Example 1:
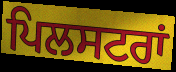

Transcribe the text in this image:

ਪਿਲਸਟਰਾਂ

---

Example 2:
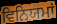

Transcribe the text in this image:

ਵਿਨਿਯਮਾਂ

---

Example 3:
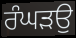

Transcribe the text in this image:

ਰੰਘੜਉ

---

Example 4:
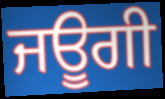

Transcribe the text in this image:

ਜਊਗੀ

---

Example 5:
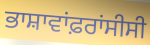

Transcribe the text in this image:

ਭਾਸ਼ਾਵਾਂਫ਼ਰਾਂਸੀਸੀ